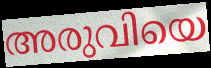
അരുവിയെ